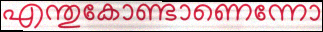
എന്തുകോണ്ടാണെന്നോ